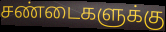
சண்டைகளுக்கு